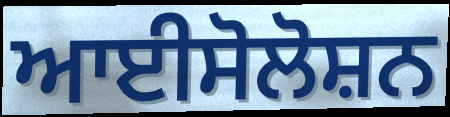
ਆਈਸੋਲੋਸ਼ਨ